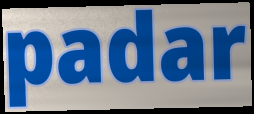
padar